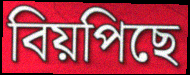
বিয়পিছে